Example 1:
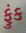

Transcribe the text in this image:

ફુંક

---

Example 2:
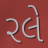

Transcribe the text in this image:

રલે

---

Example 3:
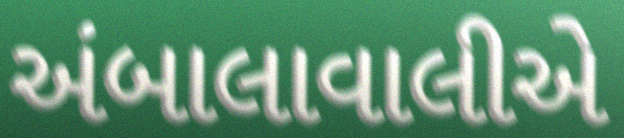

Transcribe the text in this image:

અંબાલાવાલીએ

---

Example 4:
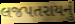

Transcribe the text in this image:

લજપતરાયનું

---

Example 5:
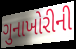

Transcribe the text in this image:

ગુનાખોરીની